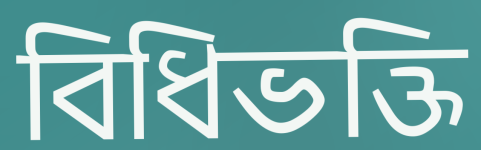
বিধিভক্তি